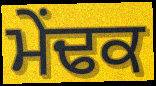
ਮੇਂਢਕ